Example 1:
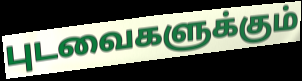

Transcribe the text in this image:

புடவைகளுக்கும்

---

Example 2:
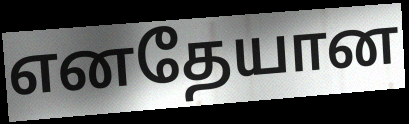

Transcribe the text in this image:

எனதேயான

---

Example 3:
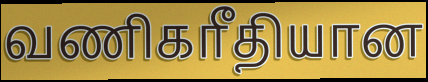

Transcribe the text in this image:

வணிகரீதியான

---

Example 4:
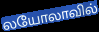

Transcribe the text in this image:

லயோலாவில்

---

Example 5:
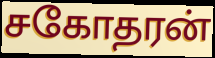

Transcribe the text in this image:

சகோதரன்